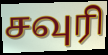
சவுரி